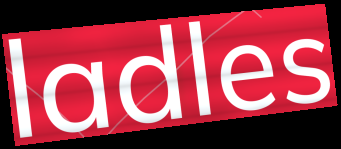
ladles